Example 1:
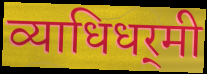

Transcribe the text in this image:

व्याधिधर्मी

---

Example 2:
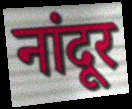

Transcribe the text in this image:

नांदूर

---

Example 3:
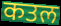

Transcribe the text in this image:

कउल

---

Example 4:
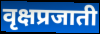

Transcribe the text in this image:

वृक्षप्रजाती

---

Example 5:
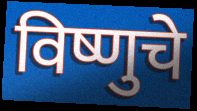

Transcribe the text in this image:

विष्णुचे